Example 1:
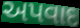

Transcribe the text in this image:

અપવાદ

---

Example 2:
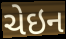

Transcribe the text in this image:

ચેઇન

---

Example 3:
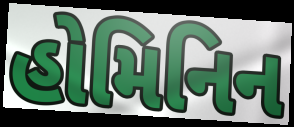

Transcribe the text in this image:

હોમિનિન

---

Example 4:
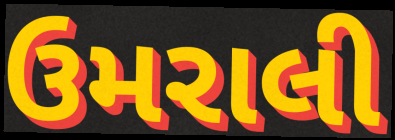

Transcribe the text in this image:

ઉમરાલી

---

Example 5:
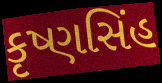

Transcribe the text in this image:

કૃષ્ણસિંહ